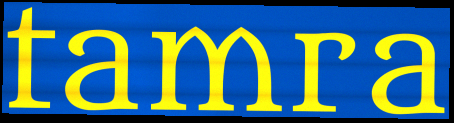
tamra